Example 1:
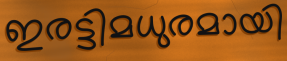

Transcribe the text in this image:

ഇരട്ടിമധുരമായി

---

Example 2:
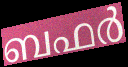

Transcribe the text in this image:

ബഫർ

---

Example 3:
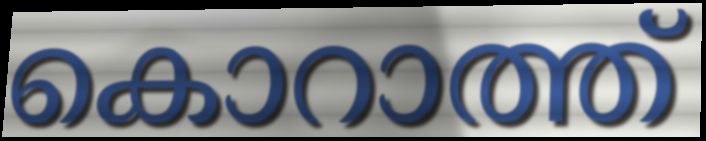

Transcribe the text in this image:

കൊറാത്ത്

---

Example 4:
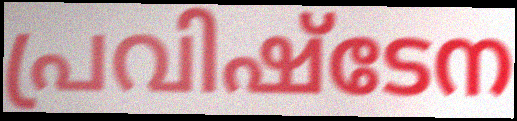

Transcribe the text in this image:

പ്രവിഷ്ടേന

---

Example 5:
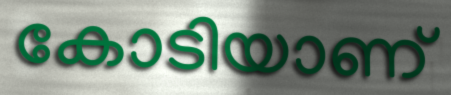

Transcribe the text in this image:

കോടിയാണ്